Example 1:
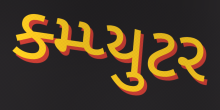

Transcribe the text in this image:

ક્મ્પ્યુટર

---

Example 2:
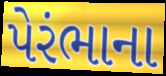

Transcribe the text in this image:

પેરંભાના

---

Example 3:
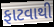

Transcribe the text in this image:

ફાટવાથી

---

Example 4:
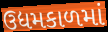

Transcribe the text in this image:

ઉદ્યમકાળમાં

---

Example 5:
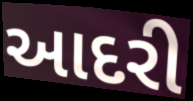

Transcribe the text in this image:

આદરી